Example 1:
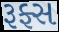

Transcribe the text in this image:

રૂફ્સ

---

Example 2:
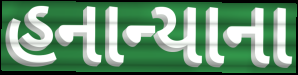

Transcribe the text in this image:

હનાન્યાના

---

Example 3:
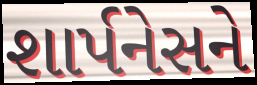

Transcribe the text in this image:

શાર્પનેસને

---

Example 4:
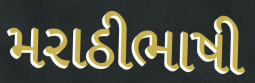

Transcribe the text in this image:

મરાઠીભાષી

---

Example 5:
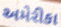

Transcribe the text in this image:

અમેરીકા